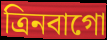
ত্রিনবাগো